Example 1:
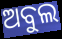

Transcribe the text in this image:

ଅବୁଲ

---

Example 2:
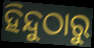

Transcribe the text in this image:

ହିନ୍ଦୁଠାରୁ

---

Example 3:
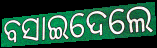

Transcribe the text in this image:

ବସାଇଦେଲେ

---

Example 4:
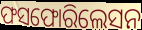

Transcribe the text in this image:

ଫସଫୋରିଲେସନ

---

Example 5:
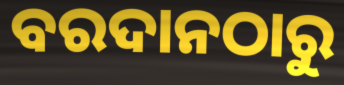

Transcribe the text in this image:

ବରଦାନଠାରୁ